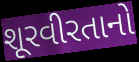
શૂરવીરતાનો